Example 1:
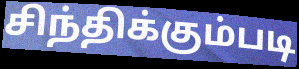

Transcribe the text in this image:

சிந்திக்கும்படி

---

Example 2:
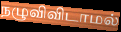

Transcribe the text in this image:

நழுவிவிடாமல்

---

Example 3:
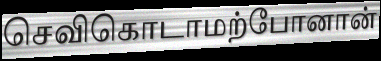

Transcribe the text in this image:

செவிகொடாமற்போனான்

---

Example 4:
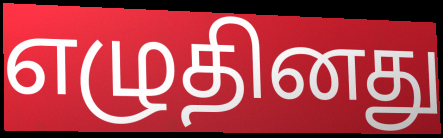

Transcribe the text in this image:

எழுதினது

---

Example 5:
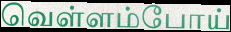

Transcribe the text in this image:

வெள்ளம்போய்